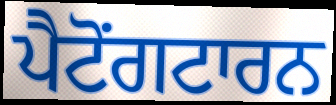
ਪੈਟੋਂਗਟਾਰਨ